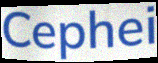
Cephei